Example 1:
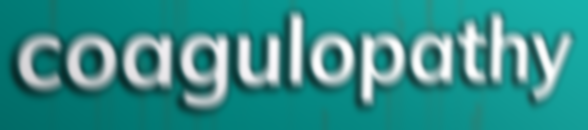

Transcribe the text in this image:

coagulopathy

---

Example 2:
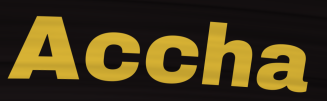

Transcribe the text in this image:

Accha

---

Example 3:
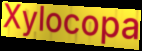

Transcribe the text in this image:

Xylocopa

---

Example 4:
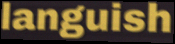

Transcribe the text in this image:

languish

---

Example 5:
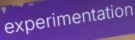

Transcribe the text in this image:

experimentation